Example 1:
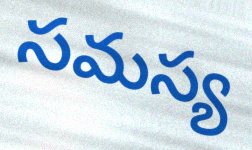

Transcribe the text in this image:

సమస్య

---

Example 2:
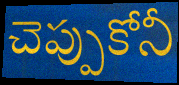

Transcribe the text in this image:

చెప్పుకోనీ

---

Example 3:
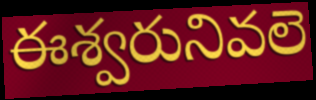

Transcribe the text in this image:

ఈశ్వరునివలె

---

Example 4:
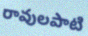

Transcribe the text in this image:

రావులపాటి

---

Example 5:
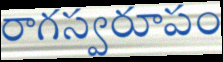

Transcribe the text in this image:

రాగస్వరూపం